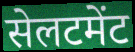
सेलटमेंट